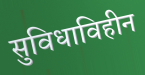
सुविधाविहीन